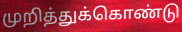
முறித்துக்கொண்டு